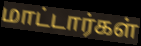
மாட்டார்கள்